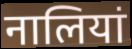
नालियां